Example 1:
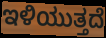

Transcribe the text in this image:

ಇಳಿಯುತ್ತದೆ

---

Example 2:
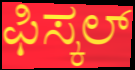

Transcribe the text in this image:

ಫಿಸ್ಕಲ್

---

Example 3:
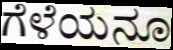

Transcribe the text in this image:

ಗೆಳೆಯನೂ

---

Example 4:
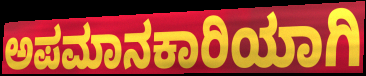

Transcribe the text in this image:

ಅಪಮಾನಕಾರಿಯಾಗಿ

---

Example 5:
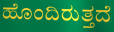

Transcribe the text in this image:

ಹೊಂದಿರುತ್ತದೆ